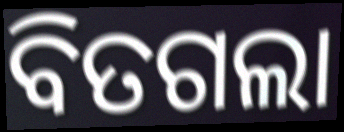
ବିତଗଲା